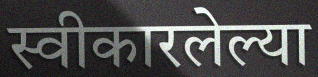
स्वीकारलेल्या